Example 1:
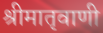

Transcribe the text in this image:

श्रीमातृवाणी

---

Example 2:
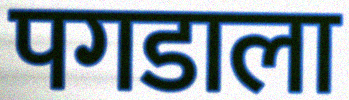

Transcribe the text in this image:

पगडाला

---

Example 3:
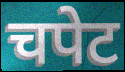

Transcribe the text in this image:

चपेट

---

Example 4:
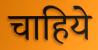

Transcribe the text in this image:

चाहिये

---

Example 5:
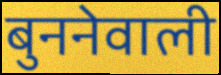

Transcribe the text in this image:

बुननेवाली